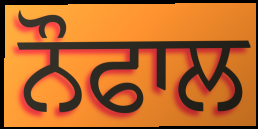
ਨੌਫਾਲ